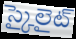
స్కైలైట్